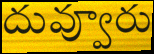
దువ్వూరు